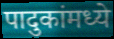
पादुकांमध्ये